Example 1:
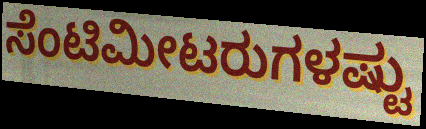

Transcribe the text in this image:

ಸೆಂಟಿಮೀಟರುಗಳಷ್ಟು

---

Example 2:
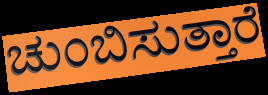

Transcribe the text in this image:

ಚುಂಬಿಸುತ್ತಾರೆ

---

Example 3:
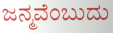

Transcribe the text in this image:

ಜನ್ಮವೆಂಬುದು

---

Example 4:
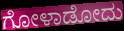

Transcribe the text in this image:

ಗೋಳಾಡೋದು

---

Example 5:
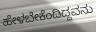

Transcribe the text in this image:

ಹೇಳಬೇಕೆಂದಿದ್ದವನು